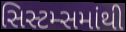
સિસ્ટમ્સમાંથી